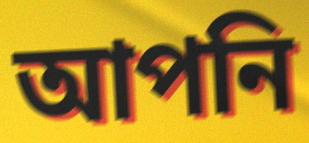
আপনি